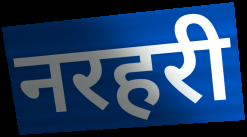
नरहरी